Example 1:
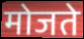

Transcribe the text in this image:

मोजते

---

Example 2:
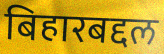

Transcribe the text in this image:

बिहारबद्दल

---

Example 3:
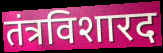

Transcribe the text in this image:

तंत्रविशारद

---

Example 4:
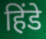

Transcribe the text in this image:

हिंडे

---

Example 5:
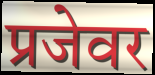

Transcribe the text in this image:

प्रजेवर